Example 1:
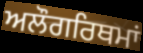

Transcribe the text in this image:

ਅਲੌਗਰਿਥਮਾਂ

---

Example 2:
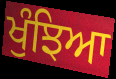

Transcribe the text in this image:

ਖੁੰਝਿਆ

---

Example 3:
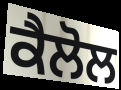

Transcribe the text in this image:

ਕੈਲੋਲ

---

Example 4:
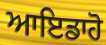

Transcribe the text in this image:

ਆਇਡਾਹੋ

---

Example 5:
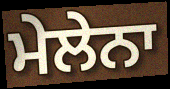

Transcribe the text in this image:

ਮੇਲੇਨਾ